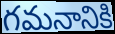
గమనానికి